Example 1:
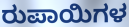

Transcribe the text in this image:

ರುಪಾಯಿಗಳ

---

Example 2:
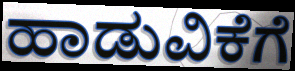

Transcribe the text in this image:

ಹಾಡುವಿಕೆಗೆ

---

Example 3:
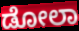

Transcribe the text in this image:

ಡೋಲಾ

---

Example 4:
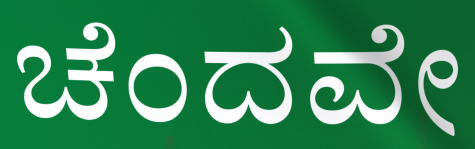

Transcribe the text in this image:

ಚೆಂದವೇ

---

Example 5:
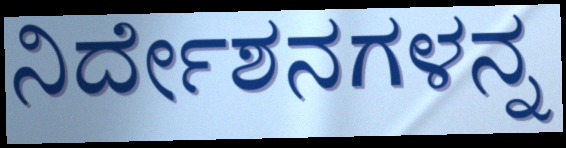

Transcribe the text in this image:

ನಿರ್ದೇಶನಗಳನ್ನ